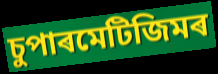
চুপাৰমেটিজিমৰ